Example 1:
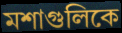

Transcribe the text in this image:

মশাগুলিকে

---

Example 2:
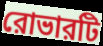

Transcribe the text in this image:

রোভারটি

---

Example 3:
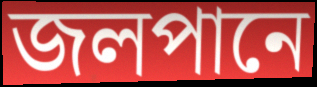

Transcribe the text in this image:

জলপানে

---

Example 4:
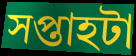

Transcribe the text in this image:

সপ্তাহটা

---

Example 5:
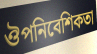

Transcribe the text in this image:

ঔপনিবেশিকতা